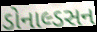
ડોનાલ્ડસન